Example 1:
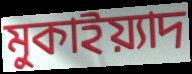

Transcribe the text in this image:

মুকাইয়্যাদ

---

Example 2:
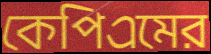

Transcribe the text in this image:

কেপিএমের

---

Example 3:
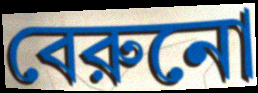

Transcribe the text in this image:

বেরুনো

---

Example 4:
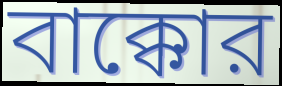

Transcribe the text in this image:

বাক্কোর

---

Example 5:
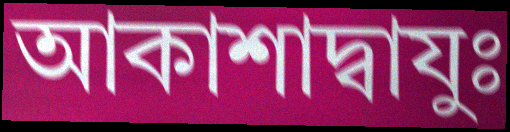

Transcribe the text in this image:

আকাশাদ্বাযুঃ